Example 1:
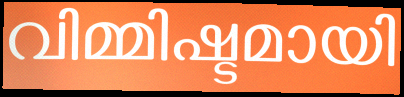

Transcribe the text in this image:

വിമ്മിഷ്ടമായി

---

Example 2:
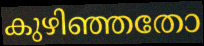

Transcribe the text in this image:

കുഴിഞ്ഞതോ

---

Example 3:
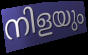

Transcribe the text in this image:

നിളയും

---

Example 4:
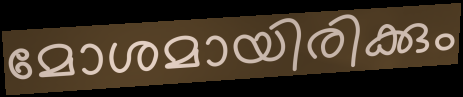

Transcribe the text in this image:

മോശമായിരിക്കും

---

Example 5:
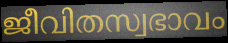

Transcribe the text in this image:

ജീവിതസ്വഭാവം